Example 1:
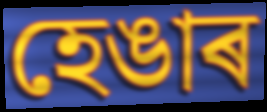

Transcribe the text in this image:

হেঙাৰ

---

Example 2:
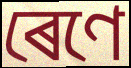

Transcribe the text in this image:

ৰেণে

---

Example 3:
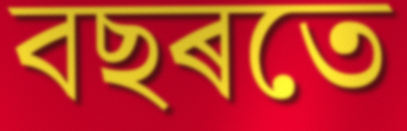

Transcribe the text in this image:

বছৰতে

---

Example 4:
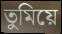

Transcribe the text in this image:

তুমিয়ে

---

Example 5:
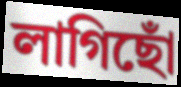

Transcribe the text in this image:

লাগিছোঁ